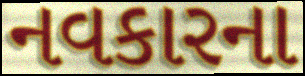
નવકારના